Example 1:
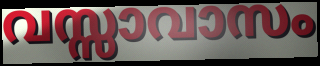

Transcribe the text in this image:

വസ്സാവാസം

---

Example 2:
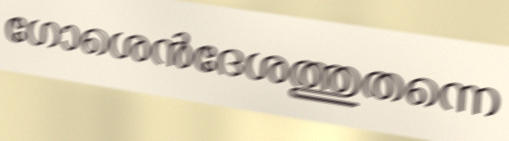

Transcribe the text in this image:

ഗോശെൻദേശത്തുതന്നെ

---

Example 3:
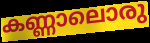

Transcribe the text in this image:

കണ്ണാലൊരു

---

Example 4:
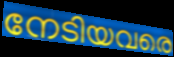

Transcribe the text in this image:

നേടിയവരെ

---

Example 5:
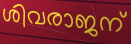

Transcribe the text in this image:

ശിവരാജന്